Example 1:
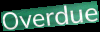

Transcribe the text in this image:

Overdue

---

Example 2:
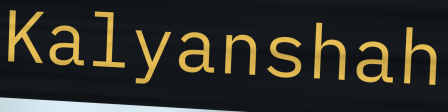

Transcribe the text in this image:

Kalyanshah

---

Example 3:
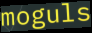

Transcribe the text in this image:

moguls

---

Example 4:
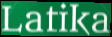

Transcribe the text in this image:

Latika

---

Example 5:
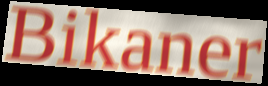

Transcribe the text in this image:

Bikaner